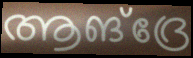
ആങ്ദ്രേ